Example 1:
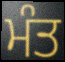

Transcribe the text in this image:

ਮੰਤ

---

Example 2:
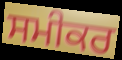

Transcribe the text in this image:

ਸਮੀਕਰ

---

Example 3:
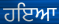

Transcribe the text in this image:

ਹਇਆ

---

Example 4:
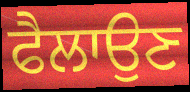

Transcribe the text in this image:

ਫੈਲਾਉਣ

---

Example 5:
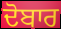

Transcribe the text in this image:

ਦੋਬਾਰ